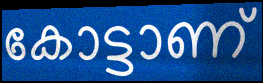
കോട്ടാണ്